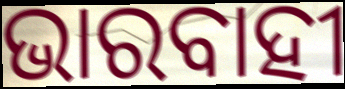
ଭାରବାହୀ